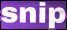
snip